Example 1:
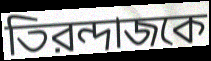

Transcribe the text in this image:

তিরন্দাজকে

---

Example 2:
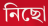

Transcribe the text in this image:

নিছো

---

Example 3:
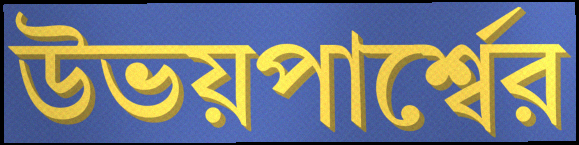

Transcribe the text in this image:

উভয়পার্শ্বের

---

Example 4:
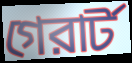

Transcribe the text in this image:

গেরার্ট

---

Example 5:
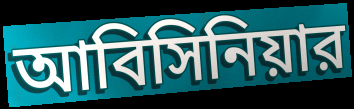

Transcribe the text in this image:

আবিসিনিয়ার